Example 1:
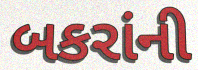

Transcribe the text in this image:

બકરાંની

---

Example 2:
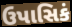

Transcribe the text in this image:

ઉપાસિકં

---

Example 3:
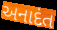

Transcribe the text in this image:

અનાદંત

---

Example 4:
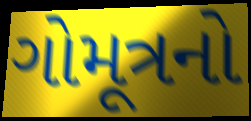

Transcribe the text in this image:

ગોમૂત્રનો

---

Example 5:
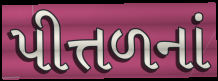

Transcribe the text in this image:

પીત્તળનાં